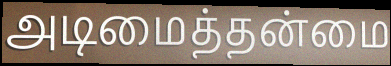
அடிமைத்தன்மை